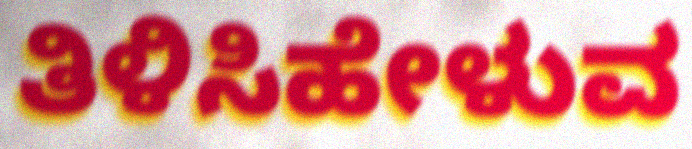
ತಿಳಿಸಿಹೇಳುವ